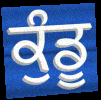
ਕੁੰਡੂ